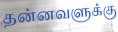
தன்னவளுக்கு